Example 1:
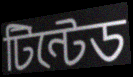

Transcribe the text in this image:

টিন্টেড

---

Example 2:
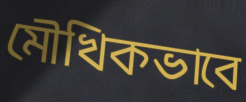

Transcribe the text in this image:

মৌখিকভাবে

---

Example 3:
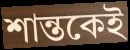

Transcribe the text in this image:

শান্তকেই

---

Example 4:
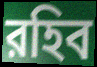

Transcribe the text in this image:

রহিব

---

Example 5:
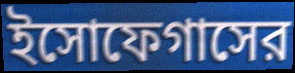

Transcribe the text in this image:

ইসোফেগাসের